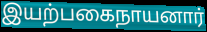
இயற்பகைநாயனார்